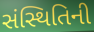
સંસ્થિતિની